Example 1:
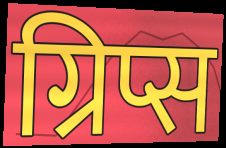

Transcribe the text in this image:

ग्रिप्स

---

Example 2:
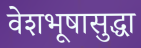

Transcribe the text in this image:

वेशभूषासुद्धा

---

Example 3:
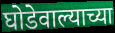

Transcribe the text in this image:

घोडेवाल्याच्या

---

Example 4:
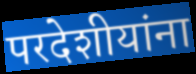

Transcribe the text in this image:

परदेशीयांना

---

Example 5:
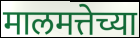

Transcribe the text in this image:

मालमत्तेच्या